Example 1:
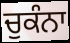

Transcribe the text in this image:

ਚੁਕੰਨਾ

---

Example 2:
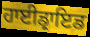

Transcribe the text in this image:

ਹਾਈਡ੍ਰਾਇਡ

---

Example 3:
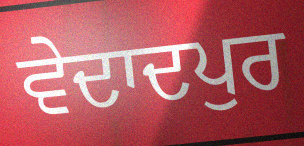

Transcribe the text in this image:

ਵੇਦਾਦਪੁਰ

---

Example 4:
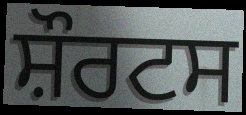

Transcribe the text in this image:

ਸ਼ੌਰਟਸ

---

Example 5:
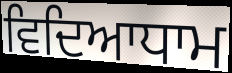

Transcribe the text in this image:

ਵਿਦਿਆਧਾਮ